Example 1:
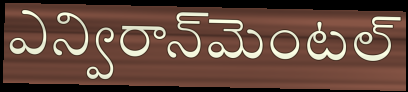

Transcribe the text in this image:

ఎన్విరాన్‌మెంటల్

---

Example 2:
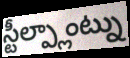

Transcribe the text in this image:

స్టీల్ప్లాంట్ను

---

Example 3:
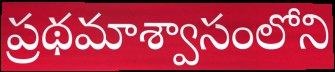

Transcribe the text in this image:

ప్రథమాశ్వాసంలోని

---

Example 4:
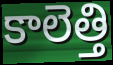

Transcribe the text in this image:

కాలెత్తి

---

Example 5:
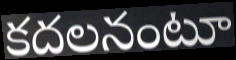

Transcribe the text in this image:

కదలనంటూ